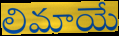
లిమాయే